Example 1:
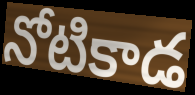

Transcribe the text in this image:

నోటికాడ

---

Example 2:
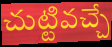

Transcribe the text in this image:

చుట్టివచ్చే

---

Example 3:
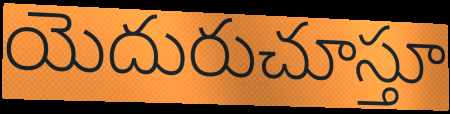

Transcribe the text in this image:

యెదురుచూస్తూ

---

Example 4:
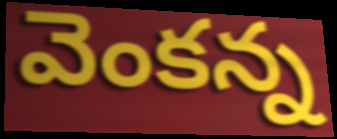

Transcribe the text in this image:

వెంకన్న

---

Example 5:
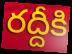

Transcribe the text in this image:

రద్దీకి